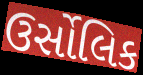
ઉર્સોલિક